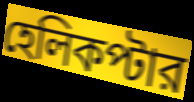
হেলিকপ্টার